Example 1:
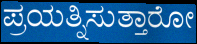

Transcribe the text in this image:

ಪ್ರಯತ್ನಿಸುತ್ತಾರೋ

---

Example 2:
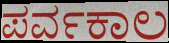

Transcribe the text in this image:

ಪರ್ವಕಾಲ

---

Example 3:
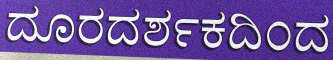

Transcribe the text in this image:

ದೂರದರ್ಶಕದಿಂದ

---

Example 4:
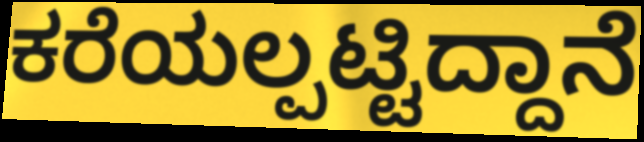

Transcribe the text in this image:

ಕರೆಯಲ್ಪಟ್ಟಿದ್ದಾನೆ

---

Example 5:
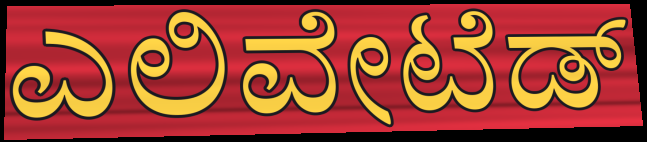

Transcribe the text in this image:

ಎಲಿವೇಟೆಡ್